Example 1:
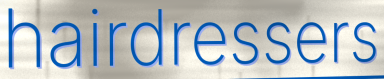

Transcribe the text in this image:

hairdressers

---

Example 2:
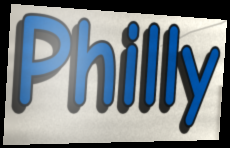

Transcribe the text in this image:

Philly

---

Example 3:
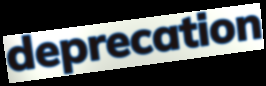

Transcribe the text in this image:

deprecation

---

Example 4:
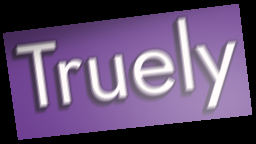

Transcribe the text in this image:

Truely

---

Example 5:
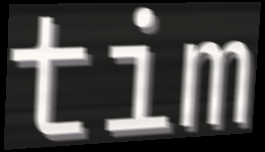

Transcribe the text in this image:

tim